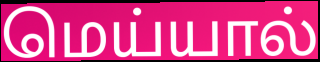
மெய்யால்